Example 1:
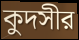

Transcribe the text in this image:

কুদসীর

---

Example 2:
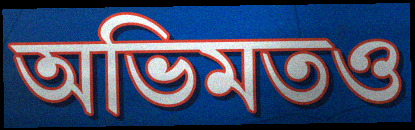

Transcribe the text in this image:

অভিমতও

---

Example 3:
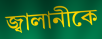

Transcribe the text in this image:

জ্বালানীকে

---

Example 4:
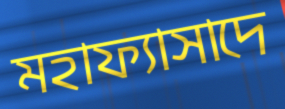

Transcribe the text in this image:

মহাফ্যাসাদে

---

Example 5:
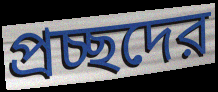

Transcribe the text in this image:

প্রচ্ছদের